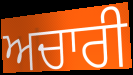
ਅਚਾਰੀ